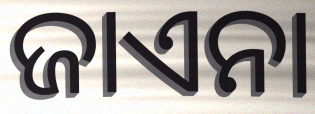
ଜାଏନା